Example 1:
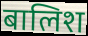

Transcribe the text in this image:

बालिश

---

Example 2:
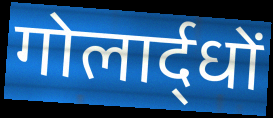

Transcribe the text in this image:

गोलार्द्धों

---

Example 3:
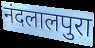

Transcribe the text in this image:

नंदलालपुरा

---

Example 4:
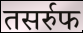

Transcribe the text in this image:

तसर्रुफ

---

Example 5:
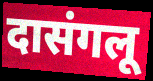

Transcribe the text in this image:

दासंगलू